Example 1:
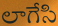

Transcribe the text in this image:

లాగేసి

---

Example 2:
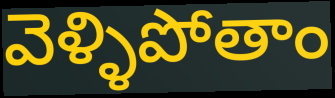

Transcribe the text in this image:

వెళ్ళిపోతాం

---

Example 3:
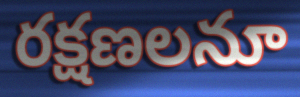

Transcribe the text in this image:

రక్షణలనూ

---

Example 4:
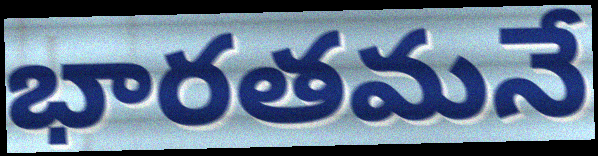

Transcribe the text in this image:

భారతమనే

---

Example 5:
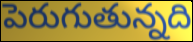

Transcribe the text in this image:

పెరుగుతున్నది